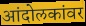
आंदोलकांवर